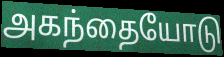
அகந்தையோடு